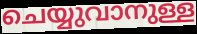
ചെയ്യുവാനുള്ള